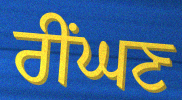
ਰੀਂਘਣ